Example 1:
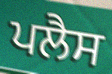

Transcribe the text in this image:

ਪਲੈਸ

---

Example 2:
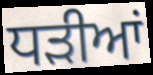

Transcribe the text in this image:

ਧੜੀਆਂ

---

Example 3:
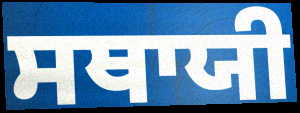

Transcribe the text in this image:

ਸਥਾਯੀ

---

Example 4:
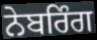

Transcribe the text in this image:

ਨੇਬਰਿੰਗ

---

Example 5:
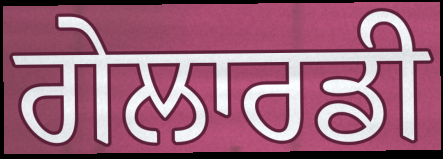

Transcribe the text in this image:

ਗੇਲਾਰਡੀ